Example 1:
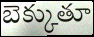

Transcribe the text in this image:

బెక్కుతూ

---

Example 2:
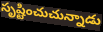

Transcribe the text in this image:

సృష్టించుచున్నాడు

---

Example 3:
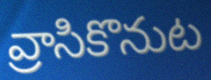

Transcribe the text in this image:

వ్రాసికొనుట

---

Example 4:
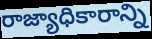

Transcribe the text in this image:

రాజ్యాధికారాన్ని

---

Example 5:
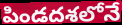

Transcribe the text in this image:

పిండదశలోనే